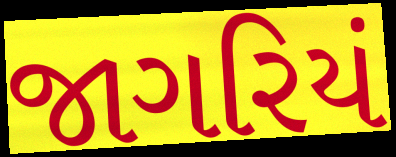
જાગરિયં